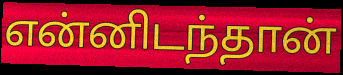
என்னிடந்தான்